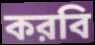
করবি